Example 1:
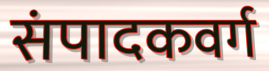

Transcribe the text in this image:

संपादकवर्ग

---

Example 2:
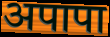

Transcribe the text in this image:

अपापा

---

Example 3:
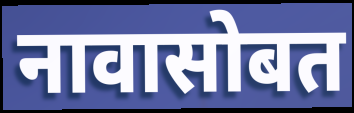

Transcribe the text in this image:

नावासोबत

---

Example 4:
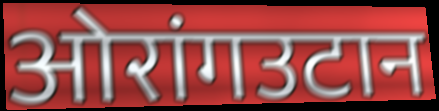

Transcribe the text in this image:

ओरांगउटान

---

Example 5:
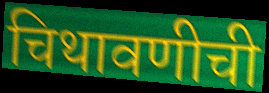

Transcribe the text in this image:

चिथावणीची